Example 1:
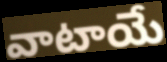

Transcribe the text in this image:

వాటాయే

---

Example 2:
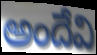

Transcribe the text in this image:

అందేవి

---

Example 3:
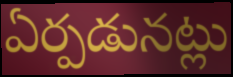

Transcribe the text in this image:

ఏర్పడునట్లు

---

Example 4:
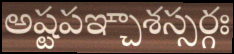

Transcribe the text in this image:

అష్టపఞ్చాశస్సర్గః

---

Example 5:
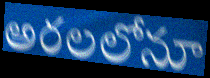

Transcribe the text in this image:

అరలలోనూ